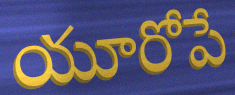
యూరోపే